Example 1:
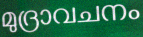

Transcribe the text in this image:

മുദ്രാവചനം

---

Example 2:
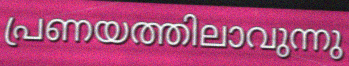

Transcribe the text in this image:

പ്രണയത്തിലാവുന്നു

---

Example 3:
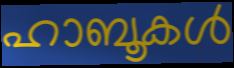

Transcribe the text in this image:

ഹാബൂകൾ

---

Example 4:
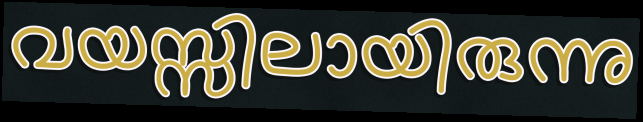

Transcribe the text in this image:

വയസ്സിലായിരുന്നു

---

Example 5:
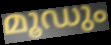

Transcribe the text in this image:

മൂഡും